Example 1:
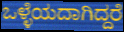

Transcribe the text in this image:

ಒಳ್ಳೆಯದಾಗಿದ್ದರೆ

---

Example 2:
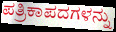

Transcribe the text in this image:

ಪತ್ರಿಕಾಪದಗಳನ್ನು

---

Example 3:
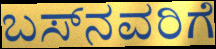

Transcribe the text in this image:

ಬಸ್‌ನವರಿಗೆ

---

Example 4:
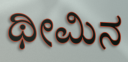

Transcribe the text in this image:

ಥೀಮಿನ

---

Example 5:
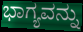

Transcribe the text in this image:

ಭಾಗ್ಯವನ್ನು